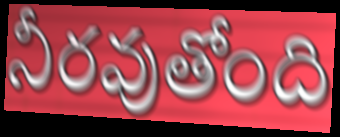
నీరవుతోంది